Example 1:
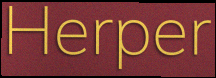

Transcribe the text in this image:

Herper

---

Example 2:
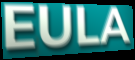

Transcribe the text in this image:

EULA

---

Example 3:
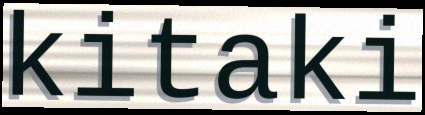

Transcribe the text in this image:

kitaki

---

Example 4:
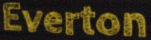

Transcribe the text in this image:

Everton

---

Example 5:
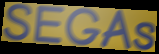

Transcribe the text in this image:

SEGAs